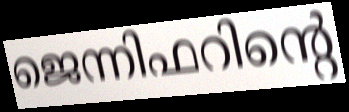
ജെന്നിഫറിന്റെ